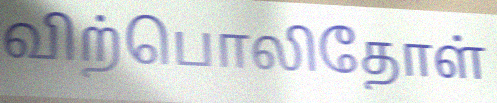
விற்பொலிதோள்